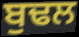
ਬੁਢਲ